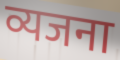
व्यजना